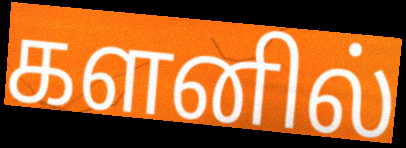
களனில்